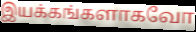
இயக்கங்களாகவோ